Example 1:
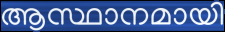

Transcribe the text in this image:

ആസ്ഥാനമായി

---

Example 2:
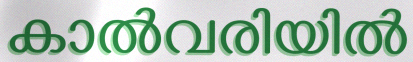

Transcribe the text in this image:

കാൽവരിയിൽ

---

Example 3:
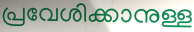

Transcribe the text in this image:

പ്രവേശിക്കാനുള്ള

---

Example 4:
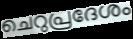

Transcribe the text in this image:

ചെറുപ്രദേശം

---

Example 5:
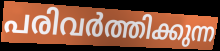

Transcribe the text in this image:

പരിവർത്തിക്കുന്ന